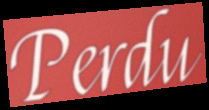
Perdu